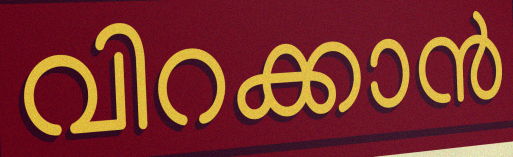
വിറക്കാൻ